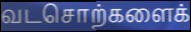
வடசொற்களைக்